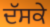
ਦੱਸਕੇ